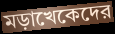
মড়াখেকেদের